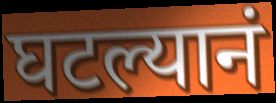
घटल्यानं